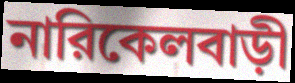
নারিকেলবাড়ী